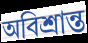
অবিশ্ৰান্ত